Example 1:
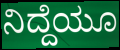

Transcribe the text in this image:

ನಿದ್ದೆಯೂ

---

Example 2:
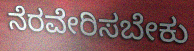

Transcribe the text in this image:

ನೆರವೇರಿಸಬೇಕು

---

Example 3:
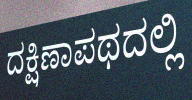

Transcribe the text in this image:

ದಕ್ಷಿಣಾಪಥದಲ್ಲಿ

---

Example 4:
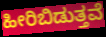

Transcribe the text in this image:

ಹೀರಿಬಿಡುತ್ತವೆ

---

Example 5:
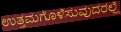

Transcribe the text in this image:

ಉತ್ತಮಗೊಳಿಸುವುದರಲ್ಲಿ